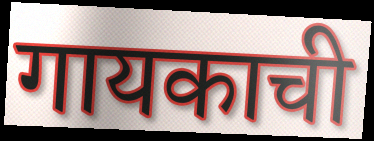
गायकाची